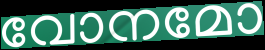
വോനമോ